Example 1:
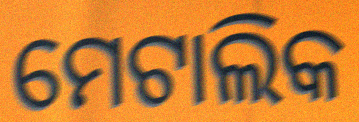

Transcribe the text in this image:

ମେଟାଲିକ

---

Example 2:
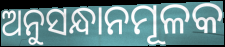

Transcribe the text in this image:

ଅନୁସନ୍ଧାନମୂଳକ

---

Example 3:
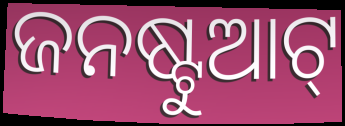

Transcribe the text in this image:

ଜନଷ୍ଟୁଆଟ୍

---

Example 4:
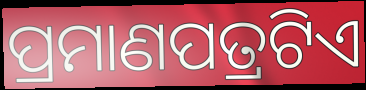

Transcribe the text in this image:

ପ୍ରମାଣପତ୍ରଟିଏ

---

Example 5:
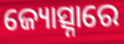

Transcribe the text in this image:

ଜ୍ୟୋତ୍ସ୍ନାରେ